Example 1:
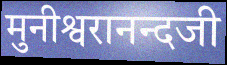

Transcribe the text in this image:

मुनीश्वरानन्दजी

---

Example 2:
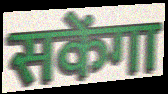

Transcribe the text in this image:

सकेंगा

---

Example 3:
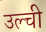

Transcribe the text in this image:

उल्ची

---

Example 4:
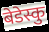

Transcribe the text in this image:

बेडेस्कु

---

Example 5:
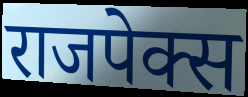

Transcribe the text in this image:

राजपेक्स